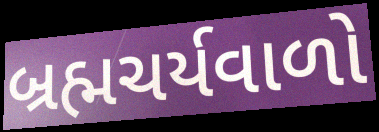
બ્રહ્મચર્યવાળો